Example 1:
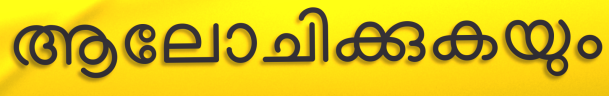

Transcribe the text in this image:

ആലോചിക്കുകയും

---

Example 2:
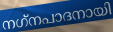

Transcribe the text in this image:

നഗ്‌നപാദനായി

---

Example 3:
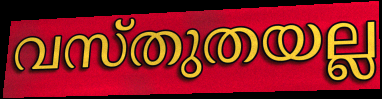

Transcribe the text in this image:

വസ്തുതയല്ല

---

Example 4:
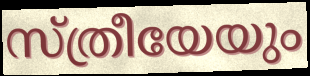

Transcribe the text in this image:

സ്ത്രീയേയും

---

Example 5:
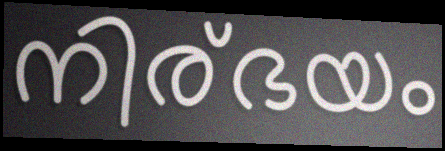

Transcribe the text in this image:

നിര്ഭയം